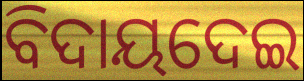
ବିଦାୟଦେଇ